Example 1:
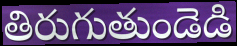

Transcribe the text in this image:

తిరుగుతుండెడి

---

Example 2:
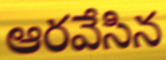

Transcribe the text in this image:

ఆరవేసిన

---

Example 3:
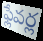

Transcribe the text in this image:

ఫ్లేవర్ల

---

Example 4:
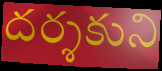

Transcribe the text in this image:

దర్శకుని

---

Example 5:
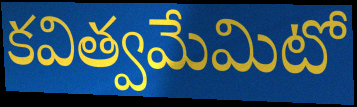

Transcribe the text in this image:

కవిత్వమేమిటో